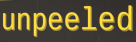
unpeeled